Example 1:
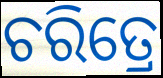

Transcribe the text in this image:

ଚରିତ୍ରେ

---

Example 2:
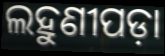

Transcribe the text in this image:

ଲହୁଣୀପଡ଼ା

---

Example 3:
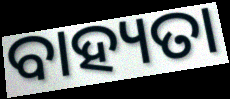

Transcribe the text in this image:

ବାହ୍ୟତା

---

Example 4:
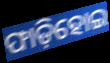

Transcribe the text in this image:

ଫାଡ଼ିହୋଇ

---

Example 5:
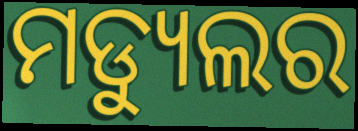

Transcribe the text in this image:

ମଡ୍ୟୁଲର